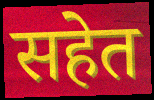
सहेत